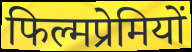
फिल्मप्रेमियों